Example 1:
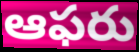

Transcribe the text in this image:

ఆఫరు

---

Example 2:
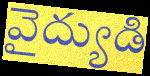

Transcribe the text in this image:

వైద్యుడి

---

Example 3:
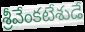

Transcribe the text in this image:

శ్రీవేంకటేశుడే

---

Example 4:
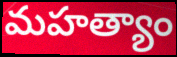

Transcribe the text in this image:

మహత్యాం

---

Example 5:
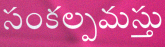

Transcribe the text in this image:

సంకల్పమస్తు